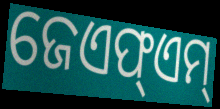
ଜେଏଫ୍ଏମ୍